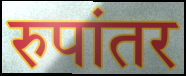
रुपांतर